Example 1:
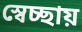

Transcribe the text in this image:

স্বেচ্ছায়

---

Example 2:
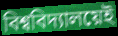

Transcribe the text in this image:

বিশ্ববিদ্যালয়েই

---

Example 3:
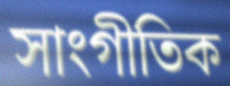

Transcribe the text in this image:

সাংগীতিক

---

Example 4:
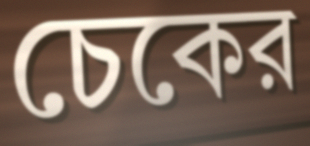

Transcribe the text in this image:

চেকের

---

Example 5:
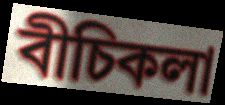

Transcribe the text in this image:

বীচিকলা